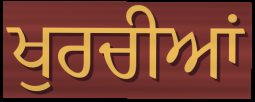
ਖੁਰਚੀਆਂ